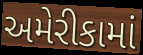
અમેરીકામાં